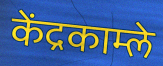
केंद्रकाम्ले